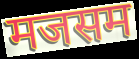
मजसम